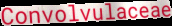
Convolvulaceae